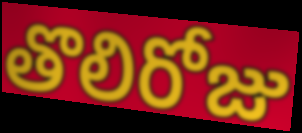
తొలిరోజు